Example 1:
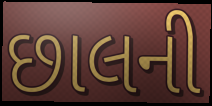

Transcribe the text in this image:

છાલની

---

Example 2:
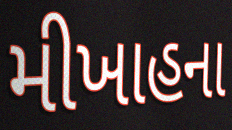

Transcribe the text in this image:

મીખાહના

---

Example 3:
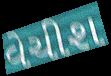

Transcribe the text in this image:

વેચીશ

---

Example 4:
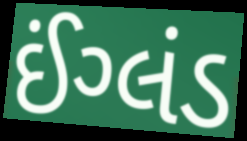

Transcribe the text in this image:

ઈંગ્લંડ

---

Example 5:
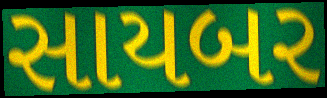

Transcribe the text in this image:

સાયબર